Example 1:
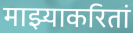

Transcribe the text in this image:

माझ्याकरितां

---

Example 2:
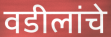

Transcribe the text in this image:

वडीलांचे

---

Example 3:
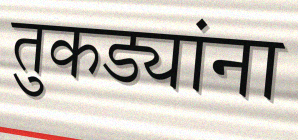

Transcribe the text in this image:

तुकड्यांना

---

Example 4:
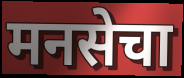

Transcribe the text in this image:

मनसेचा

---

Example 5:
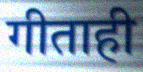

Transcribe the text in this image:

गीताही